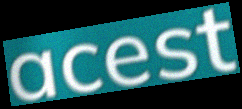
acest